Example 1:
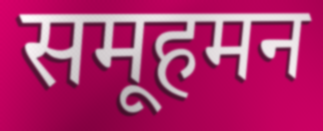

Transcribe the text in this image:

समूहमन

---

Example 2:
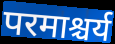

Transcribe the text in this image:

परमाश्चर्य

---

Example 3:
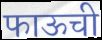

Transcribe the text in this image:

फाऊची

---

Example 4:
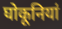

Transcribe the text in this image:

घोकूनियां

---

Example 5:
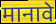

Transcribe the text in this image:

मानावे